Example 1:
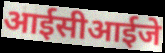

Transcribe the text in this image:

आईसीआईजे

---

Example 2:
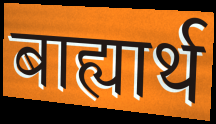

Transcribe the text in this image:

बाह्यार्थ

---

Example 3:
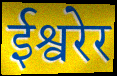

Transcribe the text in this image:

ईश्वरेर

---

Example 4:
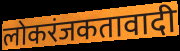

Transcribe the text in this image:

लोकरंजकतावादी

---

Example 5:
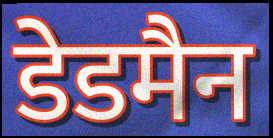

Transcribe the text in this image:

डेडमैन